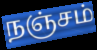
நஞ்சம்